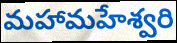
మహామహేశ్వరి